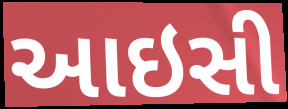
આઇસી